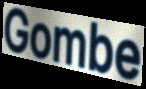
Gombe